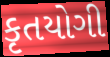
કૃતયોગી